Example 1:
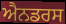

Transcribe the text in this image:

ਐਨਡਰਸ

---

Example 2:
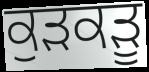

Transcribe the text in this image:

ਕੁੜਕੜੂ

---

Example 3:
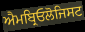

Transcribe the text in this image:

ਐਮਬ੍ਰਿਓਲੋਜਿਸਟ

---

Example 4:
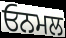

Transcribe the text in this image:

ਓਨਮਲ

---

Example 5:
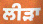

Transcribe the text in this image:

ਲੀੜਾ